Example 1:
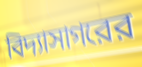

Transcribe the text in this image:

বিদ্যাসাগরের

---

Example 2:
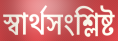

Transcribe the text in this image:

স্বার্থসংশ্লিষ্ট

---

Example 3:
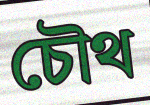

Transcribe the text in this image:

চৌথ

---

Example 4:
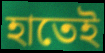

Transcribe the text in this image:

হাতেই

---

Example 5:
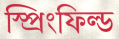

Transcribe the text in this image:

স্প্রিংফিল্ড